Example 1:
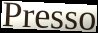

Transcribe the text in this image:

Presso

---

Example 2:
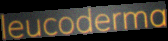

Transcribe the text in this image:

leucoderma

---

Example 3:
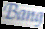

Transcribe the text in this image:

Bang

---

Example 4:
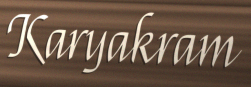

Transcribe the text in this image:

Karyakram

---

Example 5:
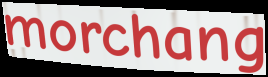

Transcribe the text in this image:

morchang